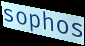
sophos